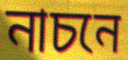
নাচনে